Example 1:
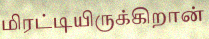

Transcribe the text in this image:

மிரட்டியிருக்கிறான்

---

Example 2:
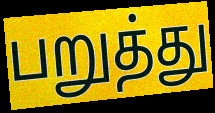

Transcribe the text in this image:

பறுத்து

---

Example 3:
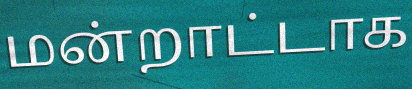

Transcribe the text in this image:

மன்றாட்டாக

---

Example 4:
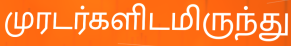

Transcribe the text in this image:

முரடர்களிடமிருந்து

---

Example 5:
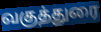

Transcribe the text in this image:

வகுத்துரை